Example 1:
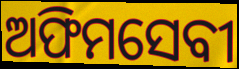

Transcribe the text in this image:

ଅଫିମସେବୀ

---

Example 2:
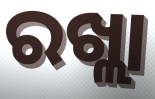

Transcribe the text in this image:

ରଖ୍ଲା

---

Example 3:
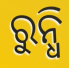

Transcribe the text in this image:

ରୁନ୍ଧି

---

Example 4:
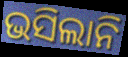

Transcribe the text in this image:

ଭସିଲାନି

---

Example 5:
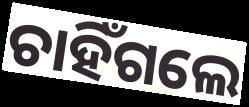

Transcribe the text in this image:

ଚାହିଁଗଲେ